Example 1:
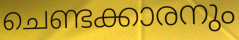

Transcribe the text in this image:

ചെണ്ടക്കാരനും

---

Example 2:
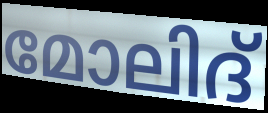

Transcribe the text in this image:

മോലിദ്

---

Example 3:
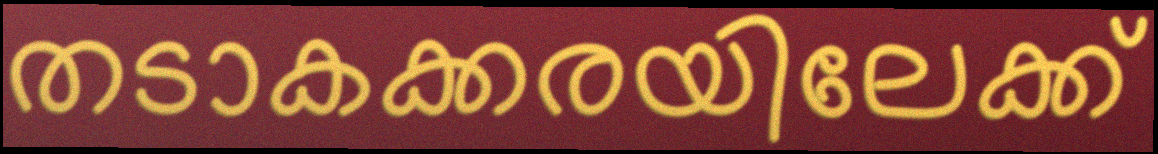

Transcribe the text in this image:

തടാകക്കരയിലേക്ക്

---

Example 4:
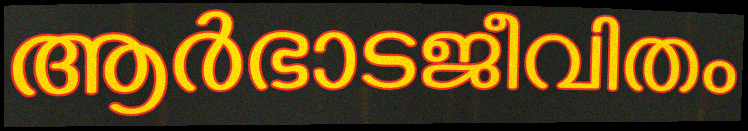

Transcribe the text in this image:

ആർഭാടജീവിതം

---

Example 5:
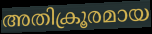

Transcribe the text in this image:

അതിക്രൂരമായ